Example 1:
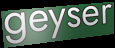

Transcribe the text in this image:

geyser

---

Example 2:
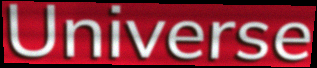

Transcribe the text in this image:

Universe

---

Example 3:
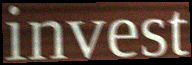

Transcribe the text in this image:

invest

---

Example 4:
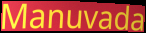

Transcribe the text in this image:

Manuvada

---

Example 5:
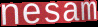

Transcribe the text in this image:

nesam